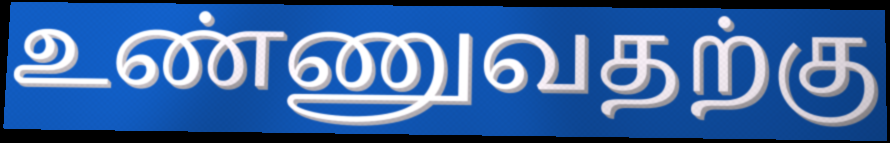
உண்ணுவதற்கு